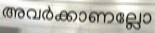
അവർക്കാണല്ലോ